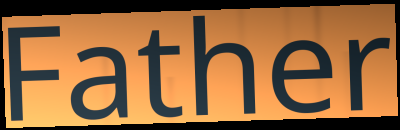
Father